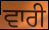
ਵਾਰੀ